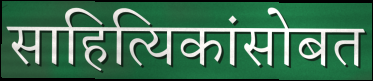
साहित्यिकांसोबत